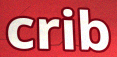
crib